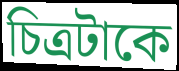
চিত্রটাকে